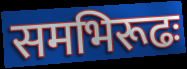
समभिरूढः